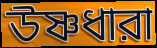
উষ্ণধারা